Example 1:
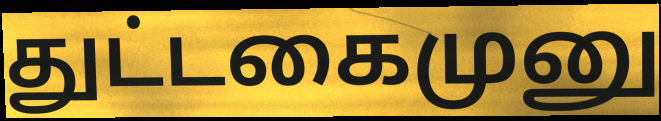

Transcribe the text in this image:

துட்டகைமுனு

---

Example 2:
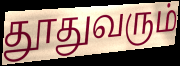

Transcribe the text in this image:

தூதுவரும்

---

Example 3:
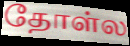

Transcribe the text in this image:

தோள்ல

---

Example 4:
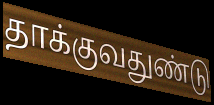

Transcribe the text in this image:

தாக்குவதுண்டு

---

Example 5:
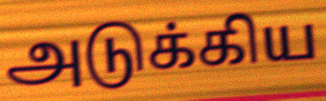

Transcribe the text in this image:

அடுக்கிய